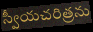
స్వీయచరిత్రను